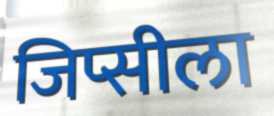
जिप्सीला